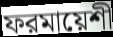
ফরমায়েশী